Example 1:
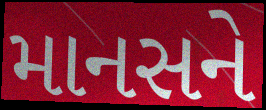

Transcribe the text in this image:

માનસને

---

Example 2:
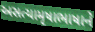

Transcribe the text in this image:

અસત્યામૃષાભાષાને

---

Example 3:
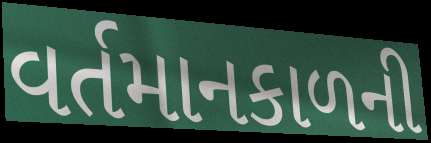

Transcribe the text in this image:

વર્તમાનકાળની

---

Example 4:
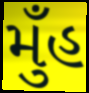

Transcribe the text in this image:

મુઁહ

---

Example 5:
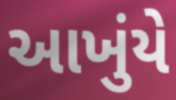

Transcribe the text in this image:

આખુંયે